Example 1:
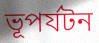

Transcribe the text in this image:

ভূপর্যটন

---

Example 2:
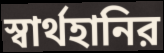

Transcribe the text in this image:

স্বার্থহানির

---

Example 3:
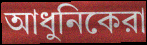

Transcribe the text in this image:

আধুনিকেরা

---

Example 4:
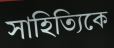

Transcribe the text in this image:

সাহিত্যিকে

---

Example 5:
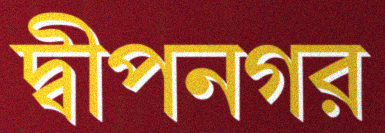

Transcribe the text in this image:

দ্বীপনগর